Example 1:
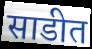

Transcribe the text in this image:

साडीत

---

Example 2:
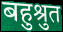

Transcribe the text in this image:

बहुश्रुत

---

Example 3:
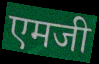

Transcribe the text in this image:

एमजी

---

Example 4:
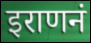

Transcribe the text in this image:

इराणनं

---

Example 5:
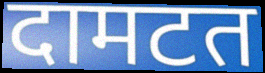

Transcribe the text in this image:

दामटत